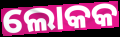
ଲୋକକ